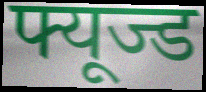
फ्यूज्ड